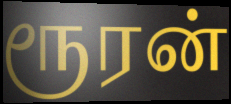
ரூரன்